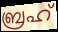
ബ്രഹ്